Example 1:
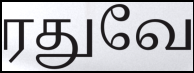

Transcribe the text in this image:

ரதுவே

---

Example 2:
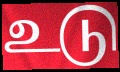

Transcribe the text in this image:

உடு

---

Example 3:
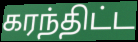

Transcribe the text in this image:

கரந்திட்ட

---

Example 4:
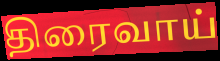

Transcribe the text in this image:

திரைவாய்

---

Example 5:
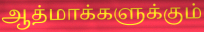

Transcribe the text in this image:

ஆத்மாக்களுக்கும்